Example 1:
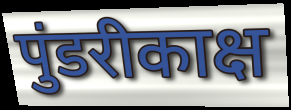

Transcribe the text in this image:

पुंडरीकाक्ष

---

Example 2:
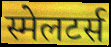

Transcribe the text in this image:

स्मेलटर्स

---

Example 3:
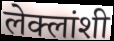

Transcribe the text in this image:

लेक्लांशी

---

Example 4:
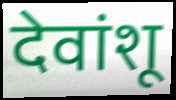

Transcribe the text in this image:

देवांशू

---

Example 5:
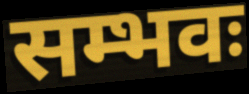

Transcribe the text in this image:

सम्भवः